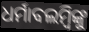
ଧର୍ମାବଲମ୍ବିଙ୍କୁ